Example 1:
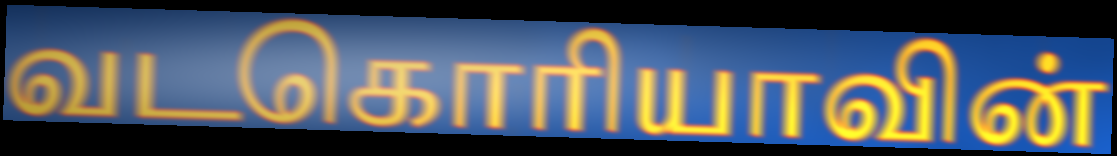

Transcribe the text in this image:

வடகொரியாவின்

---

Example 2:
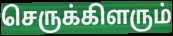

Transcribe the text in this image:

செருக்கிளரும்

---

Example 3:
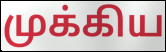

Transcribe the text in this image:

முக்கிய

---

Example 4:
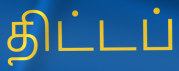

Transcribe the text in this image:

திட்டப்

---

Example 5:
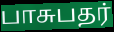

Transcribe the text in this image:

பாசுபதர்